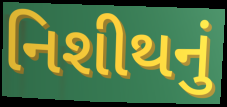
નિશીથનું